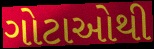
ગોટાઓથી